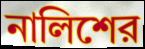
নালিশের